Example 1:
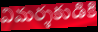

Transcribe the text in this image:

విమర్శకుడికి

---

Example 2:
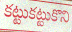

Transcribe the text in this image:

కట్టుకట్టుకొని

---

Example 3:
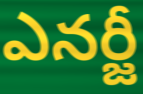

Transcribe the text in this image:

ఎనర్జీ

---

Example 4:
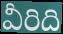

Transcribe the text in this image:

వీరిది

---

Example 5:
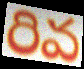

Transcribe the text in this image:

రివ